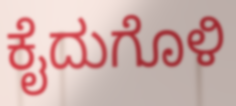
ಕೈದುಗೊಳಿ